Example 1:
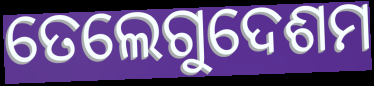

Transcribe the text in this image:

ତେଲେଗୁଦେଶମ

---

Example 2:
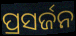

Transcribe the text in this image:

ପ୍ରସର୍ଜନ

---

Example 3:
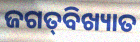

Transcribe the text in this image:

ଜଗତ୍‌ବିଖ୍ୟାତ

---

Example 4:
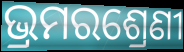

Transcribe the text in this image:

ଭ୍ରମରଶ୍ରେଣୀ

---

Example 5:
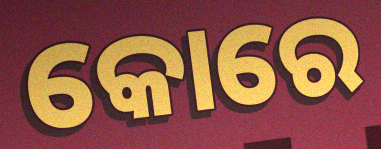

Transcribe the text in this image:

କୋରେ